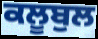
ਕਲੂਬੁਲ